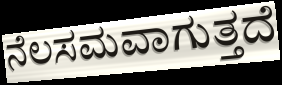
ನೆಲಸಮವಾಗುತ್ತದೆ